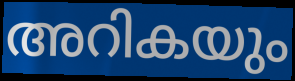
അറികയും